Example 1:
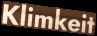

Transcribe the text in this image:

Klimkeit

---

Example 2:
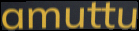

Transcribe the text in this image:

amuttu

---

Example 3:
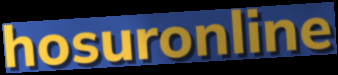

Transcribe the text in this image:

hosuronline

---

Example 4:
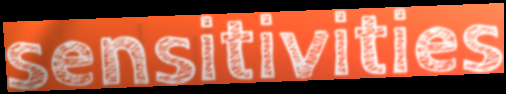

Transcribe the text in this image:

sensitivities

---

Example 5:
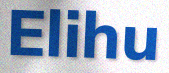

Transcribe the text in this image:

Elihu